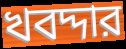
খবদ্দার